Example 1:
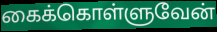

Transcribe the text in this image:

கைக்கொள்ளுவேன்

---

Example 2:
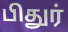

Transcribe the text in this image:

பிதுர்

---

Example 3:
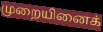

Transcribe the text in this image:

முறையினைக்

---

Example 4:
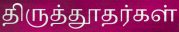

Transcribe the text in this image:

திருத்தூதர்கள்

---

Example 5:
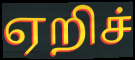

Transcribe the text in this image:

ஏறிச்